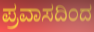
ಪ್ರವಾಸದಿಂದ